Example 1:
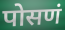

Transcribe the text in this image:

पोसणं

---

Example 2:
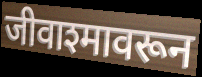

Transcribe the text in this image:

जीवाश्मावरून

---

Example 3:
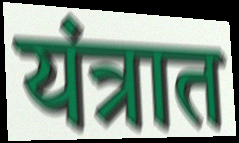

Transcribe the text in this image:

यंत्रात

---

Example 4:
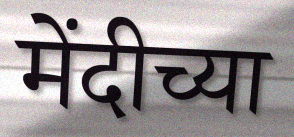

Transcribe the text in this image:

मेंदीच्या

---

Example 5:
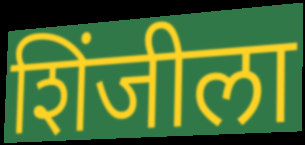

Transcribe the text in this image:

शिंजीला